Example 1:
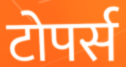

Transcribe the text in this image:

टोपर्स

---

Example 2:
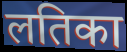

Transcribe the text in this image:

लतिका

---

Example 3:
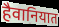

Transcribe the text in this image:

हैवानियात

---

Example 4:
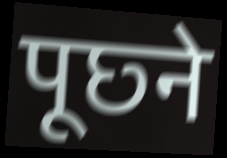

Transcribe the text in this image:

पूछ्ने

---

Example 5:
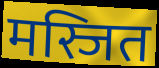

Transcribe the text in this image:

मस्जित